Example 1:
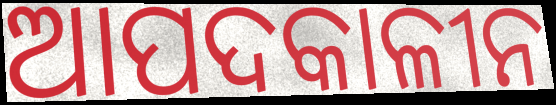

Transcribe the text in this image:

ଆପଦକାଳୀନ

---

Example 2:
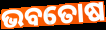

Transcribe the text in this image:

ଭବତୋଷ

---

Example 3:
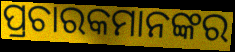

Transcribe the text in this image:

ପ୍ରଚାରକମାନଙ୍କର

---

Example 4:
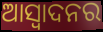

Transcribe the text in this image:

ଆସ୍ବାଦନର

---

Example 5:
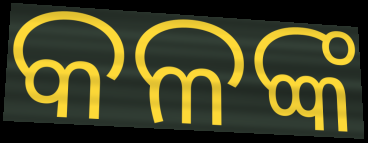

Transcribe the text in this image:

କଳଙ୍କ